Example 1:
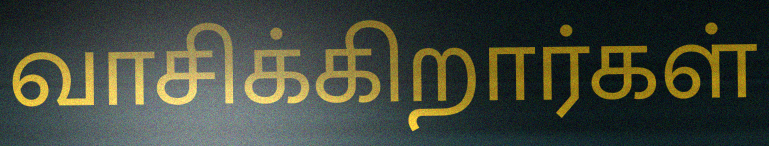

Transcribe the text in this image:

வாசிக்கிறார்கள்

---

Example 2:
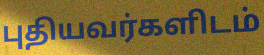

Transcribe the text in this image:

புதியவர்களிடம்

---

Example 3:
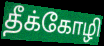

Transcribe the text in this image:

தீக்கோழி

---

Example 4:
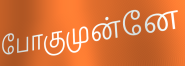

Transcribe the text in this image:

போகுமுன்னே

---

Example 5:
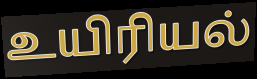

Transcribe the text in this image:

உயிரியல்